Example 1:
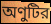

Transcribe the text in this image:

অণুটির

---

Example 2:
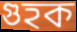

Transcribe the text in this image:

গুহক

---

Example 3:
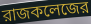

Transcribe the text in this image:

রাজকলেজের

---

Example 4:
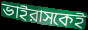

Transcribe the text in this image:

ভাইরাসকেই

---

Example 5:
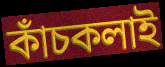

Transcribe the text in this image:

কাঁচকলাই